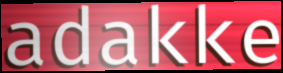
adakke